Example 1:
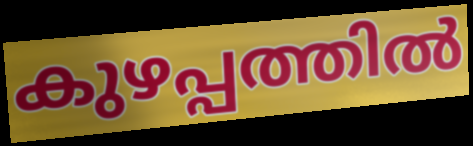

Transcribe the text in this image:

കുഴപ്പത്തിൽ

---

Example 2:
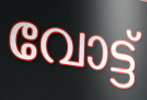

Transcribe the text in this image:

വോട്ട്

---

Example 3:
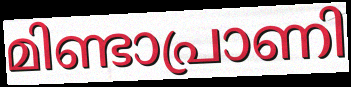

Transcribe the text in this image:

മിണ്ടാപ്രാണി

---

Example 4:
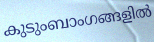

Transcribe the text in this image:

കുടുംബാംഗങ്ങളിൽ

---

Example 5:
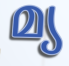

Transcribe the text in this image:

മ്യ